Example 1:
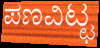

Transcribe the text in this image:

ಪಣವಿಟ್ಟ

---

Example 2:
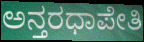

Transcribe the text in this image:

ಅನ್ತರಧಾಪೇತಿ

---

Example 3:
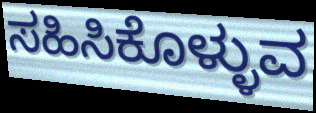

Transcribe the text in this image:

ಸಹಿಸಿಕೊಳ್ಳುವ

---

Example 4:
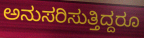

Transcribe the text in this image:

ಅನುಸರಿಸುತ್ತಿದ್ದರೂ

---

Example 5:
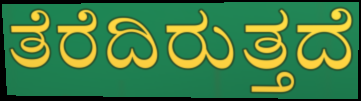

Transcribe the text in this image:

ತೆರೆದಿರುತ್ತದೆ